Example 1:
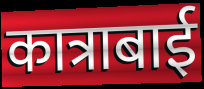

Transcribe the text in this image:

कात्राबाई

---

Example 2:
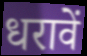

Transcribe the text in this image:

धरावें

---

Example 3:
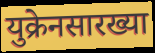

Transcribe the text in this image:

युक्रेनसारख्या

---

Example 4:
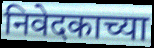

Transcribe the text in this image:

निवेदकाच्या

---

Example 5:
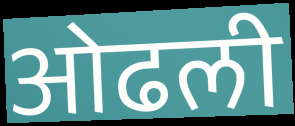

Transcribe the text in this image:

ओढली